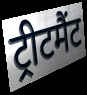
ट्रीटमैंट